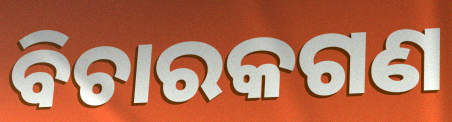
ବିଚାରକଗଣ